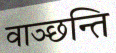
वाञ्छन्ति